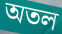
অতল